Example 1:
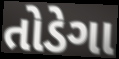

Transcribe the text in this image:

તોડેગા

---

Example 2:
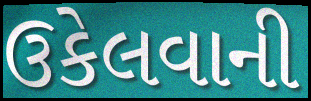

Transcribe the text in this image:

ઉકેલવાની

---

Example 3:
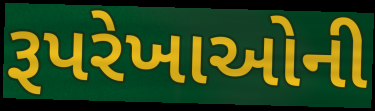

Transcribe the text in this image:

રૂપરેખાઓની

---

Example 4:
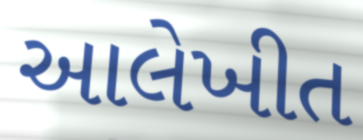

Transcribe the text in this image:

આલેખીત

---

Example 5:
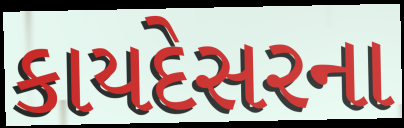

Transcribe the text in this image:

કાયદેસરના